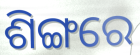
ଶିଙ୍ଗରେ